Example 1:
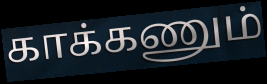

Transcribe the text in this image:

காக்கணும்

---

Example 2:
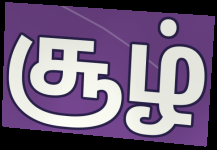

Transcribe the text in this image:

சூழ்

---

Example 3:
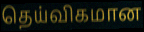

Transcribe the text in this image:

தெய்விகமான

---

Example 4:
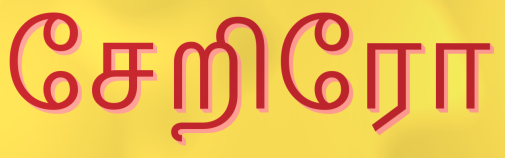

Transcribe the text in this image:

சேறிரோ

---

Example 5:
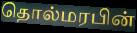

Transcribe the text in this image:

தொல்மரபின்